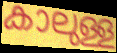
കാലുള്ള